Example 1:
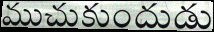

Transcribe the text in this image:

ముచుకుందుడు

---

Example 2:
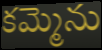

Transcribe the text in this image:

కమ్మెను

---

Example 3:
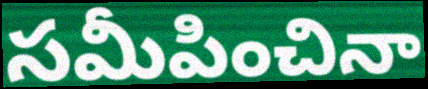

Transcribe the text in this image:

సమీపించినా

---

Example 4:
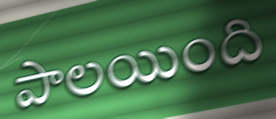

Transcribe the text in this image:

పాలయింది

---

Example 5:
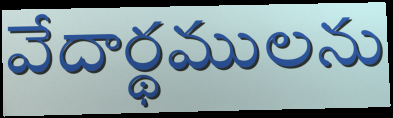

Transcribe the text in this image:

వేదార్థములను